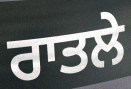
ਰਾਤਲੇ